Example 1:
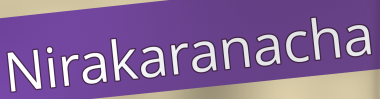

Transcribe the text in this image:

Nirakaranacha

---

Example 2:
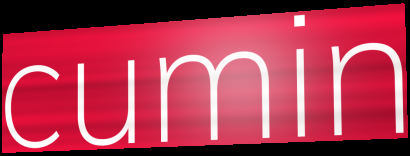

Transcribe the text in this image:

cumin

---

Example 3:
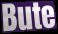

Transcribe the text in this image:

Bute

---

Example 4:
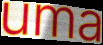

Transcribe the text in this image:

uma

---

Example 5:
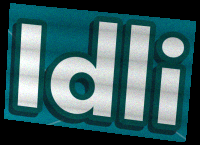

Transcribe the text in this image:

Idli